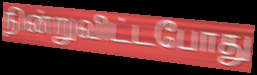
நின்றுவிட்டபோது